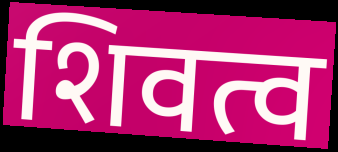
शिवत्व